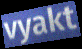
vyakt